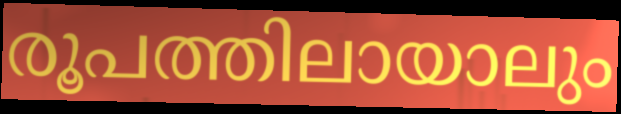
രൂപത്തിലായാലും